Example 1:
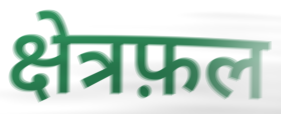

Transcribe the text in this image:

क्षेत्रफ़ल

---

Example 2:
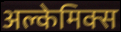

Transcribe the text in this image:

अल्केमिक्स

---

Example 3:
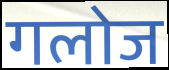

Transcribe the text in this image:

गलोज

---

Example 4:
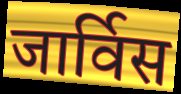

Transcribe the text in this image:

जार्विस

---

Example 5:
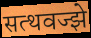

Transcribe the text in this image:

सत्थवज्झे